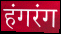
हंगरंग